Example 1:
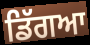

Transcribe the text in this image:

ਡਿੱਗਆ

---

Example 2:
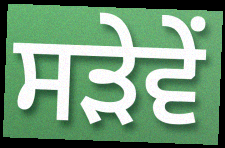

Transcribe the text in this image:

ਸੜੇਵੇਂ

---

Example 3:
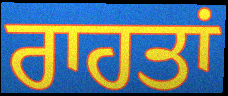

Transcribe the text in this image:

ਰਾਹਤਾਂ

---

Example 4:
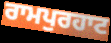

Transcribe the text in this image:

ਰਾਮਪੁਰਹਾਟ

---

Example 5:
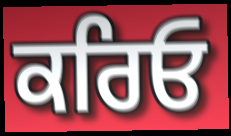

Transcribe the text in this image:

ਕਰਿਓ